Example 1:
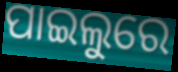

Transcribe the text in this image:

ପାଇଲୁରେ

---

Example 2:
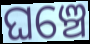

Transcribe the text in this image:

ଘଞ୍ଚେ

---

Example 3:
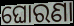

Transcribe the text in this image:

ଘୋରଣା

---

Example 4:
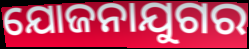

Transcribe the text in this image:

ଯୋଜନାଯୁଗର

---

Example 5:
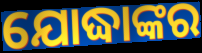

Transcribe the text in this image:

ଯୋଦ୍ଧାଙ୍କର